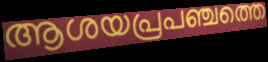
ആശയപ്രപഞ്ചത്തെ